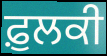
ਫ਼ੁਲਕੀ